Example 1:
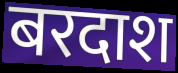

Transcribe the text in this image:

बरदाश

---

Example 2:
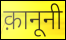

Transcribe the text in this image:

क़ानूनी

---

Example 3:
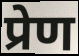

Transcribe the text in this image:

प्रेण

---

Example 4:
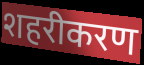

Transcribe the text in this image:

शहरीकरण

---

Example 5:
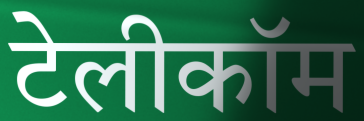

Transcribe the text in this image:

टेलीकॉम